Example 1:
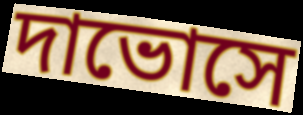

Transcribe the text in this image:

দাভোসে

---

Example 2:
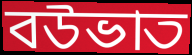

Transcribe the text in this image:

বউভাত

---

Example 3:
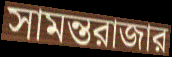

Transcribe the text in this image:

সামন্তরাজার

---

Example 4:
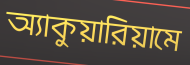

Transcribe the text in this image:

অ্যাকুয়ারিয়ামে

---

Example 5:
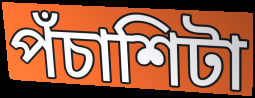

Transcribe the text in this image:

পঁচাশিটা